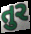
તુર